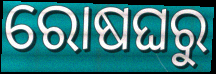
ରୋଷଘରୁ